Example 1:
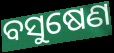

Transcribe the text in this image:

ବସୁଷେଣ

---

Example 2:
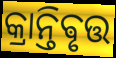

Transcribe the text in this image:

କ୍ରାନ୍ତିଵୃତ୍ତ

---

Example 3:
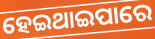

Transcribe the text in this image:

ହେଇଥାଇପାରେ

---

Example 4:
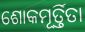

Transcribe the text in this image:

ଶୋକମୂର୍ତ୍ତିତା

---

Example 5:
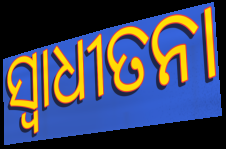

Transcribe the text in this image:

ସ୍ବାଧୀତନା